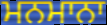
ਮਨਮਾਨਾ